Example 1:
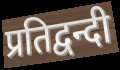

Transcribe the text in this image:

प्रतिद्वन्दी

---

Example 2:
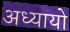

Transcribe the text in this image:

अध्यायो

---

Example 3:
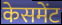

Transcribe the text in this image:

केसमेंट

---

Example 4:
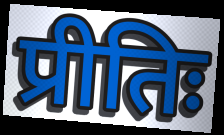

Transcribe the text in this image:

प्रीतिः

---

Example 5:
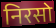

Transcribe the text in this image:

निरसो